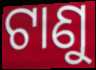
ଟାଣୁ